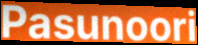
Pasunoori